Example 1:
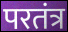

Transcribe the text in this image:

परतंत्र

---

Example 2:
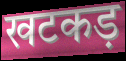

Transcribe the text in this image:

खटकड़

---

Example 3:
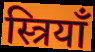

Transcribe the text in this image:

स्‍त्रियाँ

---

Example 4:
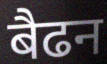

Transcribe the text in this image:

बैढन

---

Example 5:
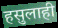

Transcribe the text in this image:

हसुलाही